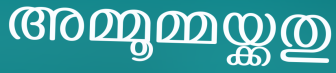
അമ്മൂമ്മയ്ക്കതു